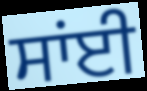
ਸਾਂਈ